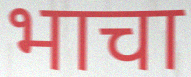
भाचा